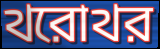
থরোথর